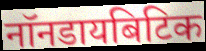
नॉनडायबिटिक